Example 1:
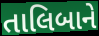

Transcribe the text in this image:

તાલિબાને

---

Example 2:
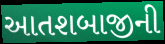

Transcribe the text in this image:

આતશબાજીની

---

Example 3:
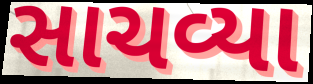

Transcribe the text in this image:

સાચવ્યા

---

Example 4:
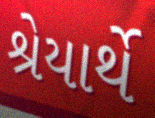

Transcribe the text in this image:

શ્રેયાર્થે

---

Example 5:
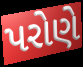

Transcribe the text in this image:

પરોણે